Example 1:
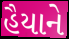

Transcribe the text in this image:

હૈયાને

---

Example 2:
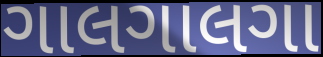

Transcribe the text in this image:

ગાલગાલગા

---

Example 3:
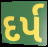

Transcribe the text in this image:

દર્પ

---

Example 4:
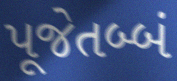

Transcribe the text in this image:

પૂજેતબ્બં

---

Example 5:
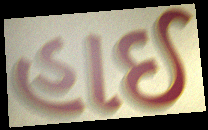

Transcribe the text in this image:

હાઈ